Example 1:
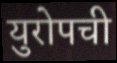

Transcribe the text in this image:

युरोपची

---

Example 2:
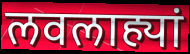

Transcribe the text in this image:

लवलाह्यां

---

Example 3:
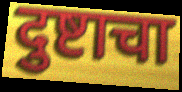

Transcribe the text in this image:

दुष्टाचा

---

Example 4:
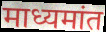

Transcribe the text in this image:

माध्यमांत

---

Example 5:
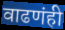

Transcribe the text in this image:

वाढणंही